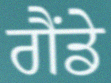
ਗੈਂਡੇ